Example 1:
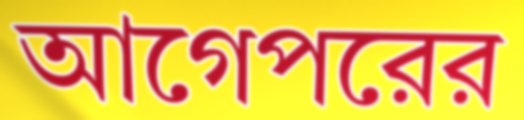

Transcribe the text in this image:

আগেপরের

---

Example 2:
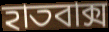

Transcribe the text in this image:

হাতবাক্স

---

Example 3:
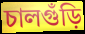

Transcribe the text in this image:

চালগুঁড়ি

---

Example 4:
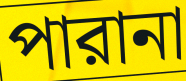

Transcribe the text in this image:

পারানা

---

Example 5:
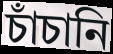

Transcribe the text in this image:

চাঁচানি